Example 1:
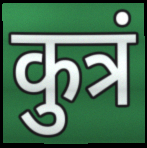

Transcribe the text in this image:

कुत्रं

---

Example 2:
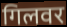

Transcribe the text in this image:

गिलवर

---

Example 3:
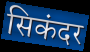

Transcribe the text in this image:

सिकंदर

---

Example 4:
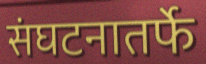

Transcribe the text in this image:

संघटनातर्फे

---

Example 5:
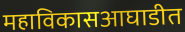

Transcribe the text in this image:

महाविकासआघाडीत